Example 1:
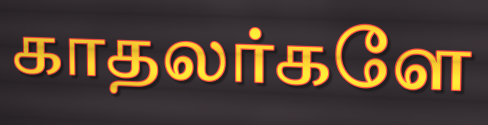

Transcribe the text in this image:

காதலர்களே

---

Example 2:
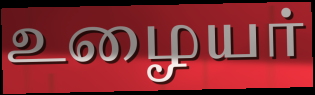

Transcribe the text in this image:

உழையர்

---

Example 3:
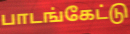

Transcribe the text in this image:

பாடங்கேட்டு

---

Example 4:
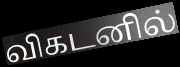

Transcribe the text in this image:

விகடனில்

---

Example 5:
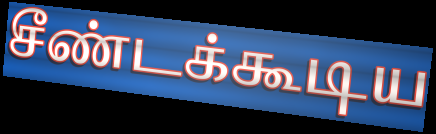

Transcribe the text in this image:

சீண்டக்கூடிய